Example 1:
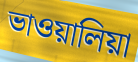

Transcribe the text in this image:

ভাওয়ালিয়া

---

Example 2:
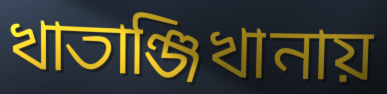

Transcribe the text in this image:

খাতাঞ্জিখানায়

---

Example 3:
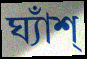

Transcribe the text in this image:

ঘ্যাঁশ্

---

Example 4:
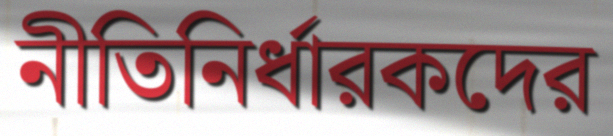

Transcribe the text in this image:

নীতিনির্ধারকদের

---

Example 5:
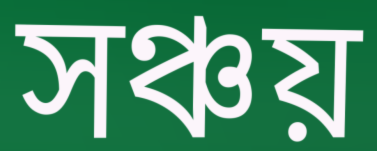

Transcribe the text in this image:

সঞ্চয়